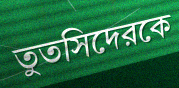
তুতসিদেরকে